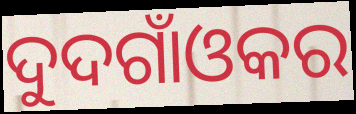
ଦୁଦଗାଁଓକର